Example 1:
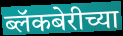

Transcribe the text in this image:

ब्लॅकबेरीच्या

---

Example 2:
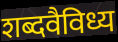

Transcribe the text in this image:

शब्दवैविध्य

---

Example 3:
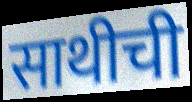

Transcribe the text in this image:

साथीची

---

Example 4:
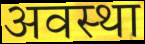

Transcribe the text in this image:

अवस्था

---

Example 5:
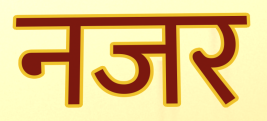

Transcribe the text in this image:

नजर